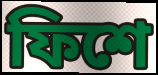
ফিশে